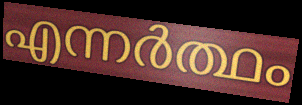
എന്നർത്ഥം